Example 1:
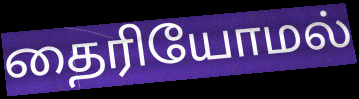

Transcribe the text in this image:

தைரியோமல்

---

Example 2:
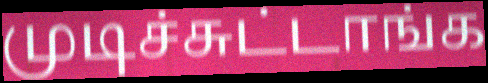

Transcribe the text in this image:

முடிச்சுட்டாங்க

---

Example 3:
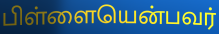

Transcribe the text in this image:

பிள்ளையென்பவர்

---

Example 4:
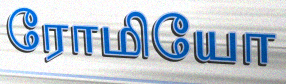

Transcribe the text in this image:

ரோமியோ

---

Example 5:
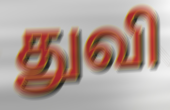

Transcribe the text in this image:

துவி